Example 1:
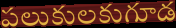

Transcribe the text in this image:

పలుకులకుగూడ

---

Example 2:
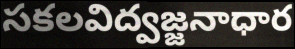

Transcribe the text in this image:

సకలవిద్వజ్జనాధార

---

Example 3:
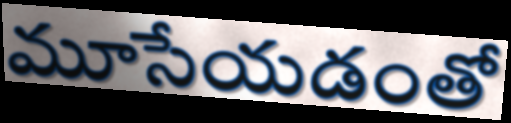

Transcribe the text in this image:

మూసేయడంతో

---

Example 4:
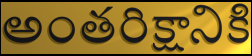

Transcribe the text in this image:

అంతరిక్షానికి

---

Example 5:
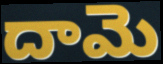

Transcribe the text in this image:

దామె